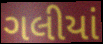
ગલીયાં